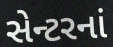
સેન્ટરનાં